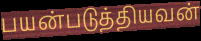
பயன்படுத்தியவன்